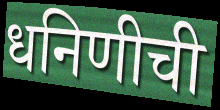
धनिणीची